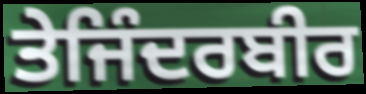
ਤੇਜਿੰਦਰਬੀਰ